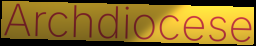
Archdiocese